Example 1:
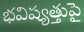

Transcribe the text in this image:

భవిష్యత్తుపై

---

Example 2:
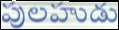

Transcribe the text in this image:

పులహుడు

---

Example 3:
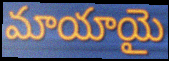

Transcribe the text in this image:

మాయాయై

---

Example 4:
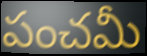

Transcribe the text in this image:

పంచమీ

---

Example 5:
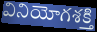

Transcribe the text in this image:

వినియోగశక్తి